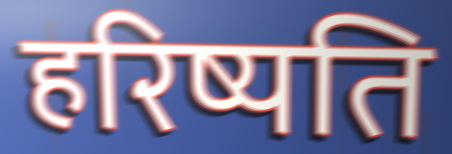
हरिष्यति